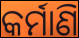
କର୍ମାଣି